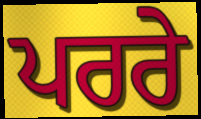
ਪਰਰੇ